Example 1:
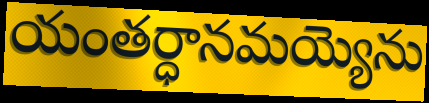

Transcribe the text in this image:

యంతర్ధానమయ్యెను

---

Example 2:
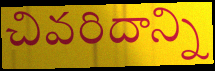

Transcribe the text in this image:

చివరిదాన్ని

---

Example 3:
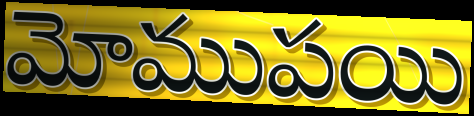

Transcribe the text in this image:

మోముపయి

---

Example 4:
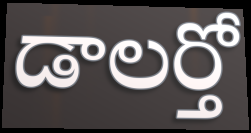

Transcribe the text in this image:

డాలర్తో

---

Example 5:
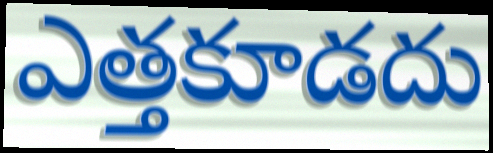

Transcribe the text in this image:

ఎత్తకూడదు